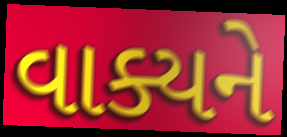
વાક્યને